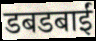
डबडबाईं